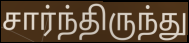
சார்ந்திருந்து